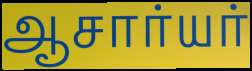
ஆசார்யர்